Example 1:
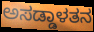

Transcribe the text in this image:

ಅಸಡ್ಡಾಳತನ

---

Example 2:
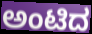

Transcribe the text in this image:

ಅಂಟಿದ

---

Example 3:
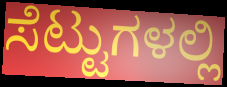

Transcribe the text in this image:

ಸೆಟ್ಟುಗಳಲ್ಲಿ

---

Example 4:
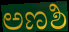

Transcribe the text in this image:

ಅಣಶಿ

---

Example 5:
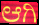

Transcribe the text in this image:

ಆಗಿ